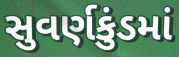
સુવર્ણકુંડમાં